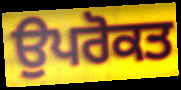
ਉਪਰੋਕਤ